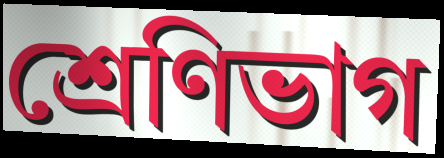
শ্রেণিভাগ